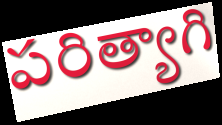
పరిత్యాగి